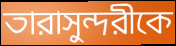
তারাসুন্দরীকে